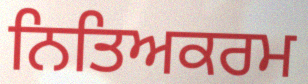
ਨਿਤਿਅਕਰਮ